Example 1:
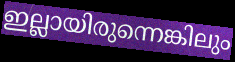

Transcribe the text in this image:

ഇല്ലായിരുന്നെങ്കിലും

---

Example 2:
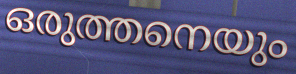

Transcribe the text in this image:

ഒരുത്തനെയും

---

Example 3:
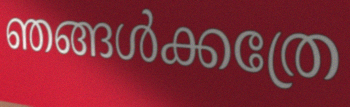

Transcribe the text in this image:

ഞങ്ങൾക്കത്രേ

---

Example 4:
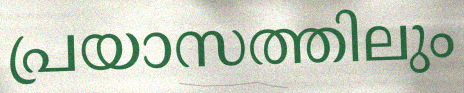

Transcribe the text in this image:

പ്രയാസത്തിലും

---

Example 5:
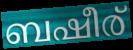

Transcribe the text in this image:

ബഷീര്